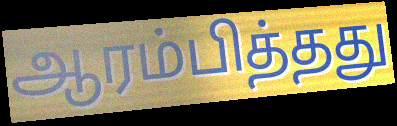
ஆரம்பித்தது